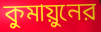
কুমায়ুনের